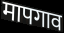
मापगाव